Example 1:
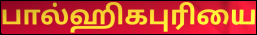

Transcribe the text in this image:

பால்ஹிகபுரியை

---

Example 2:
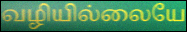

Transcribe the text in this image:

வழியில்லையே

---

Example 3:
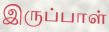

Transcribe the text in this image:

இருப்பாள்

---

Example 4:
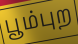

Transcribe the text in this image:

பூம்புற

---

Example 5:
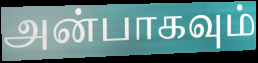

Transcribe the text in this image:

அன்பாகவும்